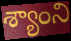
శ్యాంని